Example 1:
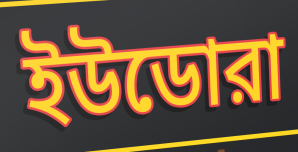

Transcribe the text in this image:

ইউডোরা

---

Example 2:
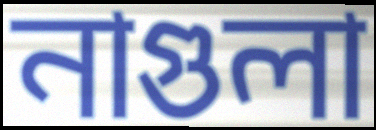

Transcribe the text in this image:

নাগুলা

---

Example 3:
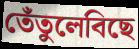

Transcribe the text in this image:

তেঁতুলেবিছে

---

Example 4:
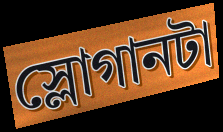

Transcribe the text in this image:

স্লোগানটা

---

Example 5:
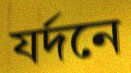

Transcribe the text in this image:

যর্দনে